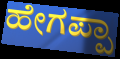
ಹೇಗಪ್ಪಾ